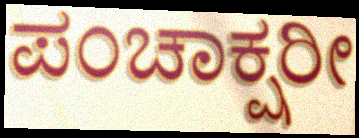
ಪಂಚಾಕ್ಷರೀ